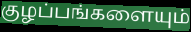
குழப்பங்களையும்